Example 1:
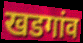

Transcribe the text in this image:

खडगांव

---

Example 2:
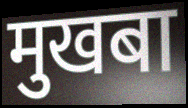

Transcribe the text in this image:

मुखबा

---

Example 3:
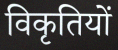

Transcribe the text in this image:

विकृतियों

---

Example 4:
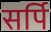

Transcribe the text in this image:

सर्पि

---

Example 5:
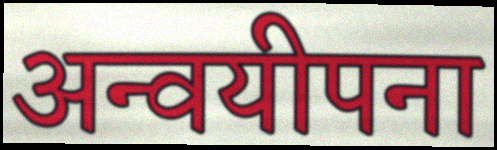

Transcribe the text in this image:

अन्वयीपना